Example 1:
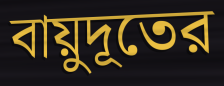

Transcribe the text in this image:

বায়ুদূতের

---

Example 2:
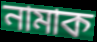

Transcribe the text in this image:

নামাক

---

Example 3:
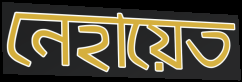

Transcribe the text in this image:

নেহায়েত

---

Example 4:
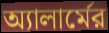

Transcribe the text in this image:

অ্যালার্মের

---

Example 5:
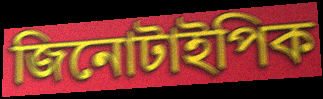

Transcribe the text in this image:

জিনোটাইপিক